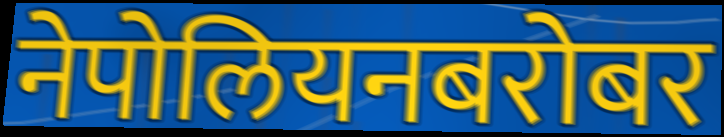
नेपोलियनबरोबर